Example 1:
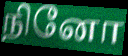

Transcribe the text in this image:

நினோ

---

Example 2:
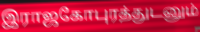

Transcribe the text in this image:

இராஜகோபுரத்துடனும்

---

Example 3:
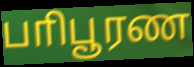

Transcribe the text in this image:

பரிபூரண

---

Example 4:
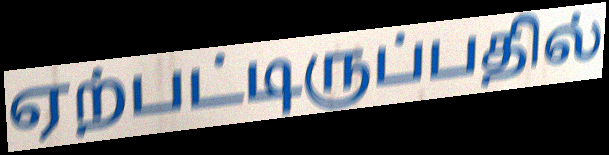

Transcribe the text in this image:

ஏற்பட்டிருப்பதில்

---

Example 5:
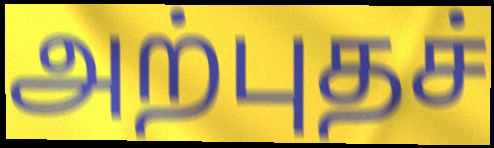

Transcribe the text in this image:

அற்புதச்